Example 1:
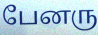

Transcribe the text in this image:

பேனரு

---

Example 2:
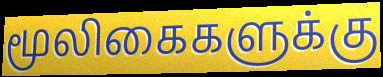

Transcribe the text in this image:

மூலிகைகளுக்கு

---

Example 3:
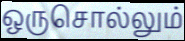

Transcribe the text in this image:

ஒருசொல்லும்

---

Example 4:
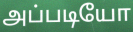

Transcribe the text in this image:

அப்படியோ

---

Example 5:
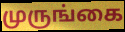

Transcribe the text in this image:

முருங்கை